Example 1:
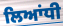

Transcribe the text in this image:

ਲਿਆਂਧੀ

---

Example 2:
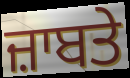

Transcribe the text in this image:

ਜ਼ਾਬਤੇ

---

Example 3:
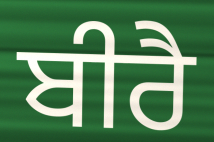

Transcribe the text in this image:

ਬੀਰੈ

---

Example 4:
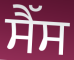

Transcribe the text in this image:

ਸੈੱਸ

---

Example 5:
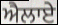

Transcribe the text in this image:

ਐਲਾਏ